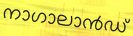
നാഗാലാൻഡ്